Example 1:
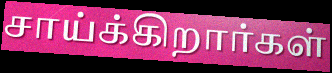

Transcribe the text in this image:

சாய்க்கிறார்கள்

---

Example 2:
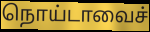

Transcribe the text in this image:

நொய்டாவைச்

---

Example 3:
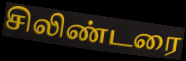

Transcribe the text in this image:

சிலிண்டரை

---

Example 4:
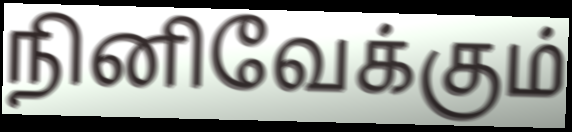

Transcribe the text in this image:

நினிவேக்கும்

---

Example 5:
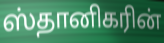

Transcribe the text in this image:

ஸ்தானிகரின்